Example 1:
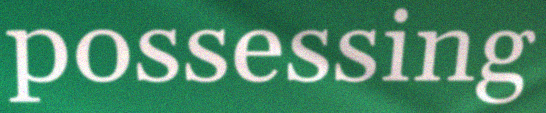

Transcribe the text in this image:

possessing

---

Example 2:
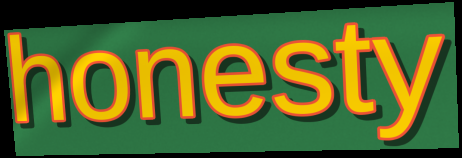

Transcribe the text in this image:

honesty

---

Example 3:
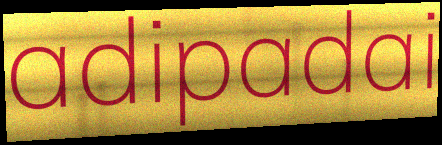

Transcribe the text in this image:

adipadai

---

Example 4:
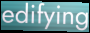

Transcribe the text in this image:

edifying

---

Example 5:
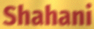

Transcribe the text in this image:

Shahani